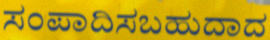
ಸಂಪಾದಿಸಬಹುದಾದ